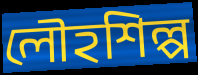
লৌহশিল্প